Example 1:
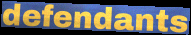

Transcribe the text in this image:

defendants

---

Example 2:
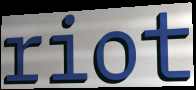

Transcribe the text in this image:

riot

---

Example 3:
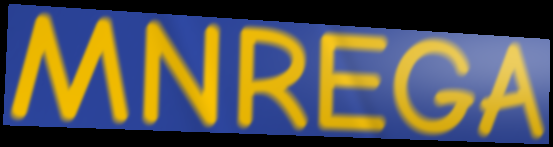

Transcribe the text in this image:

MNREGA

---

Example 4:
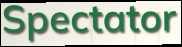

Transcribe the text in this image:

Spectator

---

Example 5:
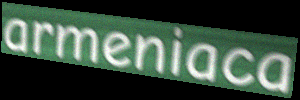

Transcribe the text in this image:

armeniaca